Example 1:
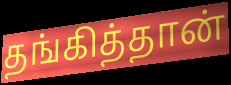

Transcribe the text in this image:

தங்கித்தான்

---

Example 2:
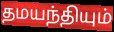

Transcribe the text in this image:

தமயந்தியும்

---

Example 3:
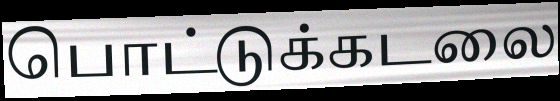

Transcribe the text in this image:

பொட்டுக்கடலை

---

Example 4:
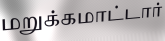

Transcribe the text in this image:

மறுக்கமாட்டார்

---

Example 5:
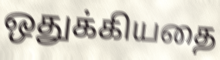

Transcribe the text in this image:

ஒதுக்கியதை